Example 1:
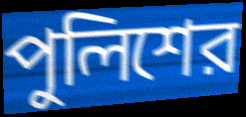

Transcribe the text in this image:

পুলিশের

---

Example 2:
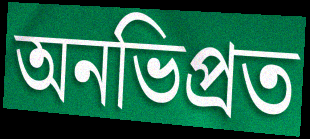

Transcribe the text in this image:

অনভিপ্রত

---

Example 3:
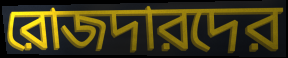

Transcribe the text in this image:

রোজদারদের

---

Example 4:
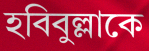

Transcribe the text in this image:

হবিবুল্লাকে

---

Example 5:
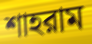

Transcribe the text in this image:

শাহরাম